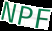
NPF